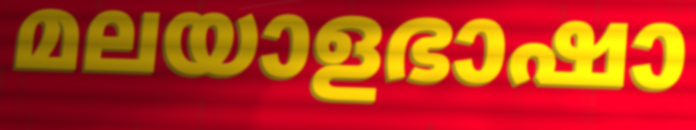
മലയാളഭാഷാ